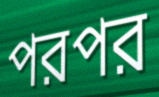
পরপর